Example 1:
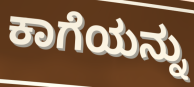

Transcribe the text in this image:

ಕಾಗೆಯನ್ನು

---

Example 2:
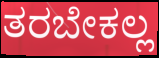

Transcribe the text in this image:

ತರಬೇಕಲ್ಲ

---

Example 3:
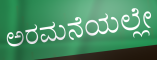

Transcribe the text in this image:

ಅರಮನೆಯಲ್ಲೇ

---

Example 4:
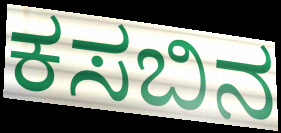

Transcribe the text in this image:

ಕಸಬಿನ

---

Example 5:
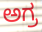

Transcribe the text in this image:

ಅಗ್ರ